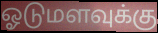
ஓடுமளவுக்கு